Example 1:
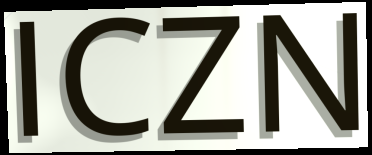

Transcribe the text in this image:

ICZN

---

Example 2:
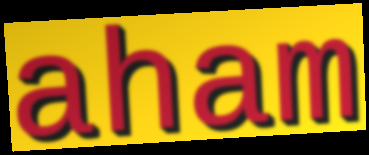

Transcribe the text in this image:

aham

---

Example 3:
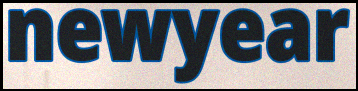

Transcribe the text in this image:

newyear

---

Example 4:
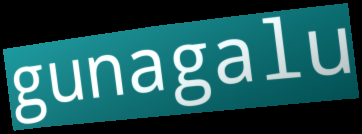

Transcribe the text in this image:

gunagalu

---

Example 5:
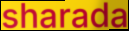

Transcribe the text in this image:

sharada